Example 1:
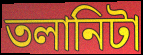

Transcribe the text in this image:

তলানিটা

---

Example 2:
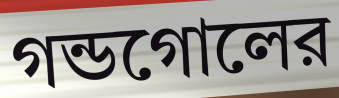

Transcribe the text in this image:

গন্ডগোলের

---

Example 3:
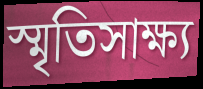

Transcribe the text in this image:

স্মৃতিসাক্ষ্য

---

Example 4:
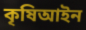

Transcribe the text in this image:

কৃষিআইন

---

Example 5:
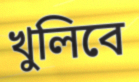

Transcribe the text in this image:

খুলিবে